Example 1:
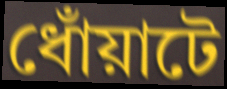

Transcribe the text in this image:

ধোঁয়াটে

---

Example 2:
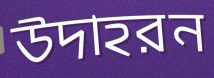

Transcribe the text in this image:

উদাহরন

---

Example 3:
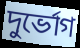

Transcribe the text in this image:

দুর্ভোগ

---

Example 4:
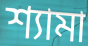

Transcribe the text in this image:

শ্যামা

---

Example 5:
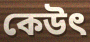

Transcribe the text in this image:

কেউৎ